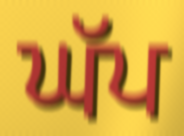
ਘੱਪ